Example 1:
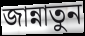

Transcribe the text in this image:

জান্নাতুন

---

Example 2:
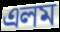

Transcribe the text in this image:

এলম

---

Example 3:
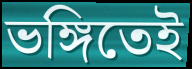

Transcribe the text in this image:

ভঙ্গিতেই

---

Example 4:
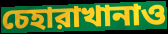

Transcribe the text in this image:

চেহারাখানাও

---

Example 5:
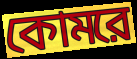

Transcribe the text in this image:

কোমরে